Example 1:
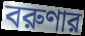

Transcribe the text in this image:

বরুণার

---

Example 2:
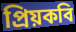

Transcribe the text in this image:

প্রিয়কবি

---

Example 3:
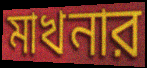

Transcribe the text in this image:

মাখনার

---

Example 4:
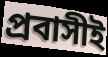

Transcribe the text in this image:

প্রবাসীই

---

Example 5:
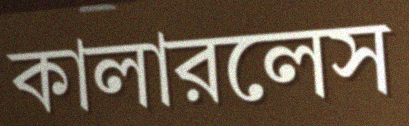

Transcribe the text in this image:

কালারলেস